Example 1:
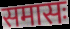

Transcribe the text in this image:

समासः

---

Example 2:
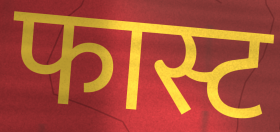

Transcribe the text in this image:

फास्ट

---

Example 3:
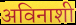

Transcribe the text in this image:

अविनाशी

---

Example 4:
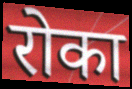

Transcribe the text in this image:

रोका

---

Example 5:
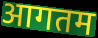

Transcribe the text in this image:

आगतम